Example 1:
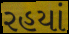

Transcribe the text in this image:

રહયાં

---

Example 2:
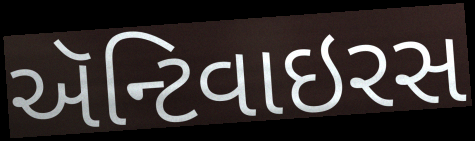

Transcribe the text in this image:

ઍન્ટિવાઇરસ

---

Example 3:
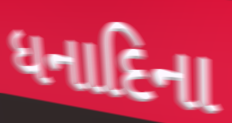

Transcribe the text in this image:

ધનાદિના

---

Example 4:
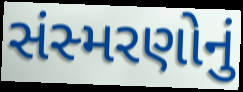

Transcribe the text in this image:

સંસ્મરણોનું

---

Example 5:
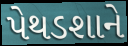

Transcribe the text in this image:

પેથડશાને